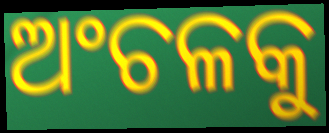
ଅଂଚଳକୁ